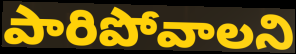
పారిపోవాలని